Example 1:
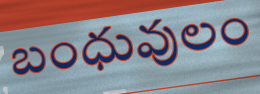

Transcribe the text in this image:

బంధువులం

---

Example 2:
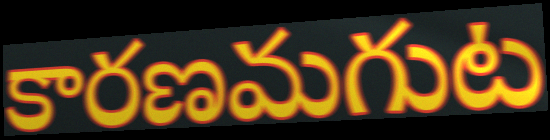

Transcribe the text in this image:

కారణమగుట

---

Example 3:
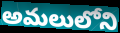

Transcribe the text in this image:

అమలులోని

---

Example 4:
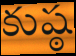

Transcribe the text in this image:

కుష్ఠ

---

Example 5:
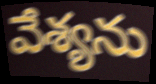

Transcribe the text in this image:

వేశ్యను